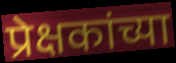
प्रेक्षकांच्या